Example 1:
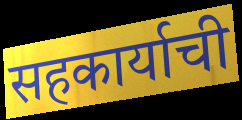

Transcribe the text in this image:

सहकार्याची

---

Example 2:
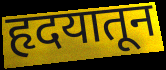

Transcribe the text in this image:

हृदयातून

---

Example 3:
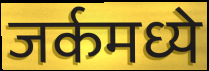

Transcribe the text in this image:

जर्कमध्ये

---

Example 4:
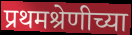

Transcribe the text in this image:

प्रथमश्रेणीच्या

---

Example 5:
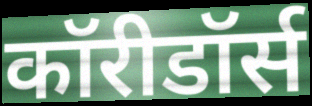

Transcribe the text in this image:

कॉरीडॉर्स